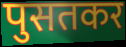
पुसतकर